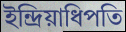
ইন্দ্রিয়াধিপতি